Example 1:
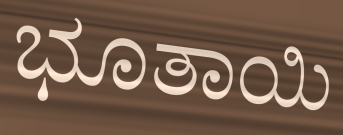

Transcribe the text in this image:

ಭೂತಾಯಿ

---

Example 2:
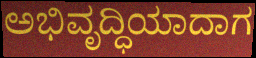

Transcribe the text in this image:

ಅಭಿವೃದ್ಧಿಯಾದಾಗ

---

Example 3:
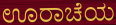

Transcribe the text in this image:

ಊರಾಚೆಯ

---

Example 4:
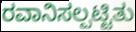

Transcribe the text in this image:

ರವಾನಿಸಲ್ಪಟ್ಟಿತು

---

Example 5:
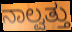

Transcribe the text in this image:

ನಾಲ್ವತ್ತು